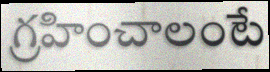
గ్రహించాలంటే